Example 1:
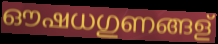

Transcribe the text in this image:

ഔഷധഗുണങ്ങള്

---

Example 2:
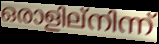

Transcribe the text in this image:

ഒരാളില്നിന്ന്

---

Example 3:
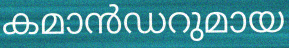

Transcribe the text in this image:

കമാൻഡറുമായ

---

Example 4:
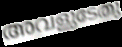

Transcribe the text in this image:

അവളുടേതു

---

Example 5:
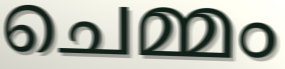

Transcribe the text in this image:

ചെമ്മം